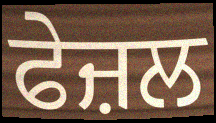
ਫੇਜ਼ਲ